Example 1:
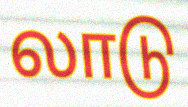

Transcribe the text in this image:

லாடு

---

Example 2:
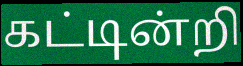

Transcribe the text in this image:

கட்டின்றி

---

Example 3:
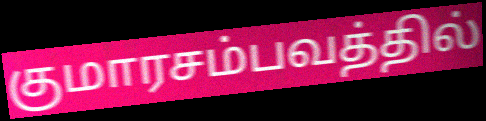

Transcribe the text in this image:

குமாரசம்பவத்தில்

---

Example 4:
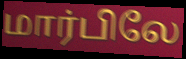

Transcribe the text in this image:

மார்பிலே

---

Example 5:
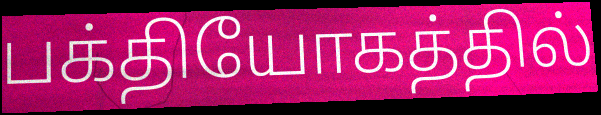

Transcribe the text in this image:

பக்தியோகத்தில்